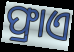
ଫ୍ରାଏ